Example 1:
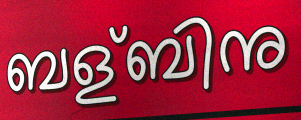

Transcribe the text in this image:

ബള്ബിനു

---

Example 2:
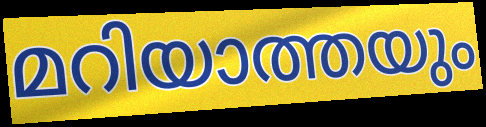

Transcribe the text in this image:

മറിയാത്തയും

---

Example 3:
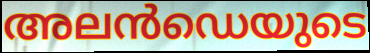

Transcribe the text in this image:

അലൻഡെയുടെ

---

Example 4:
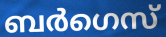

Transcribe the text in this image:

ബർഗെസ്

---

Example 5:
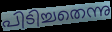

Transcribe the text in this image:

പിടിച്ചതെന്നു